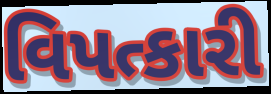
વિપત્કારી